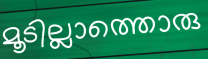
മൂടില്ലാത്തൊരു